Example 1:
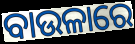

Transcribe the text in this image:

ବାଉଳାରେ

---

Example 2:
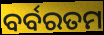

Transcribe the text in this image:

ବର୍ବରତମ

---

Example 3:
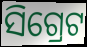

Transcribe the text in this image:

ସିଗ୍ରେଟ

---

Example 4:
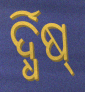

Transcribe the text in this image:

ର୍ଦ୍ଧିଷ୍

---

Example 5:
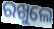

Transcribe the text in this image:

ରଖୁଲେ